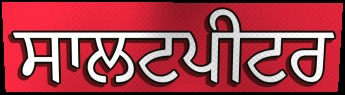
ਸਾਲਟਪੀਟਰ